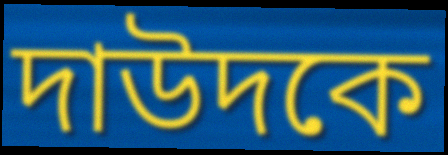
দাউদকে